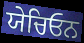
ਯੇਚਿਓਨ